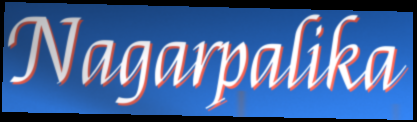
Nagarpalika